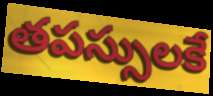
తపస్సులకే